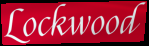
Lockwood